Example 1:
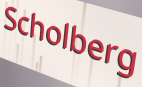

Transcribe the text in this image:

Scholberg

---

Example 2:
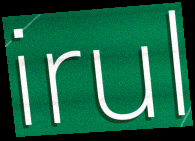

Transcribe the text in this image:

irul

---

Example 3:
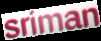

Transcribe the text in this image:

sriman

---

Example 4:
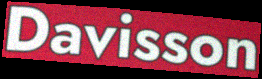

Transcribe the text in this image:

Davisson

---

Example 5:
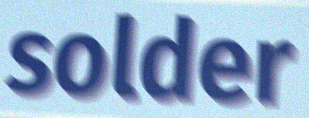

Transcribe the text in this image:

solder